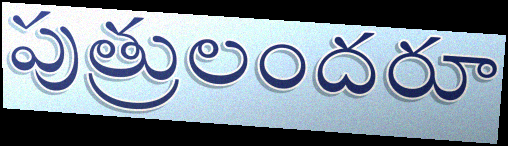
పుత్రులందరూ